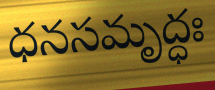
ధనసమృద్ధః